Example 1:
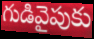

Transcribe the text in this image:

గుడివైపుకు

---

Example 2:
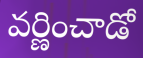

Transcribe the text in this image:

వర్ణించాడో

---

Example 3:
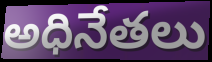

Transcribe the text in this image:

అధినేతలు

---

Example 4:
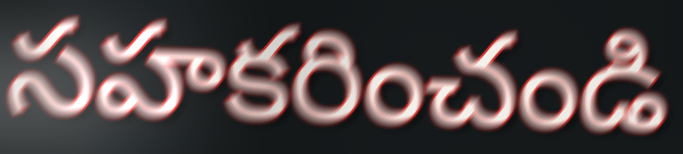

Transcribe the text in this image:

సహకరించండి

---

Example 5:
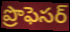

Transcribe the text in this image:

ప్రొఫెసర్